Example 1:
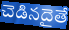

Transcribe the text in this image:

చెడినదైతే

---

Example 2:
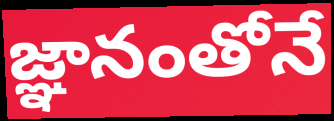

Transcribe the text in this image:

జ్ఞానంతోనే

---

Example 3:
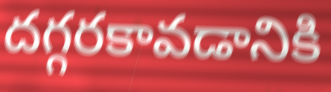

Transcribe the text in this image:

దగ్గరకావడానికి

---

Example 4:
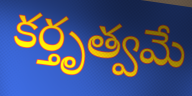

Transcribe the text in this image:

కర్తృత్వమే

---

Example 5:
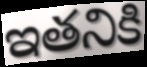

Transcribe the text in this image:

ఇతనికి